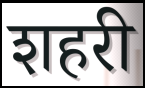
शहरी